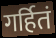
गर्हितं